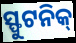
ସ୍ଫୁଟନିକ୍